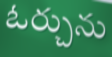
ఓర్చును